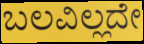
ಬಲವಿಲ್ಲದೇ